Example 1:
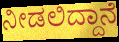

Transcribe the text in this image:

ನೀಡಲಿದ್ದಾನೆ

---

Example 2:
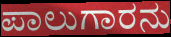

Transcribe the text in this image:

ಪಾಲುಗಾರನು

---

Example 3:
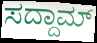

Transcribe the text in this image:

ಸದ್ದಾಮ್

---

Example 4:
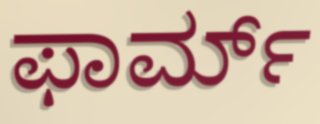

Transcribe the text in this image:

ಫಾರ್ಮ್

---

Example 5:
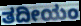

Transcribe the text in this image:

ತದೀಯಂ